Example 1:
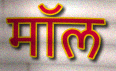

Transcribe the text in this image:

मॉल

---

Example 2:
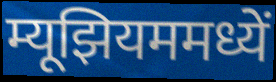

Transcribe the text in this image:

म्यूझियममध्यें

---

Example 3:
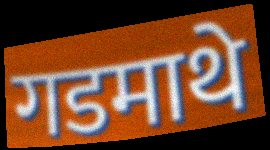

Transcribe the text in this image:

गडमाथे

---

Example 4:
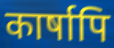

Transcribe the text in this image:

कार्षापि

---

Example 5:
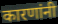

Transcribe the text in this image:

कारणांनी